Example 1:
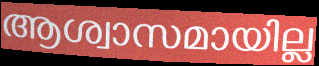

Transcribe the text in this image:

ആശ്വാസമായില്ല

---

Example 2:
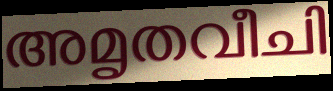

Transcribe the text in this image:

അമൃതവീചി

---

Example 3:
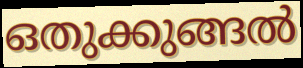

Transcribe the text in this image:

ഒതുക്കുങ്ങൽ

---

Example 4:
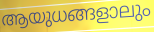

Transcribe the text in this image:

ആയുധങ്ങളാലും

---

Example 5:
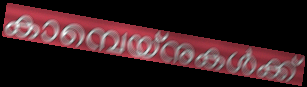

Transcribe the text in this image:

കാമ്പെയ്നുകൾക്ക്